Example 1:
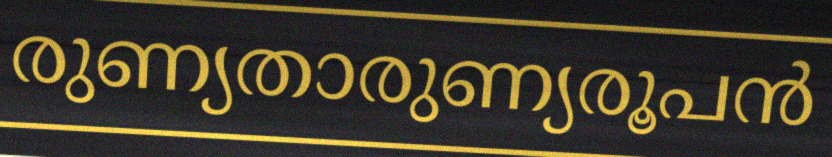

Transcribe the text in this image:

രുണ്യതാരുണ്യരൂപൻ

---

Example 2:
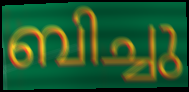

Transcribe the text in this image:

ബിച്ചു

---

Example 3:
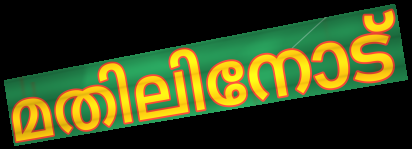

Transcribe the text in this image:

മതിലിനോട്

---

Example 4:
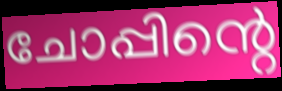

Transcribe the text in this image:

ചോപ്പിന്റെ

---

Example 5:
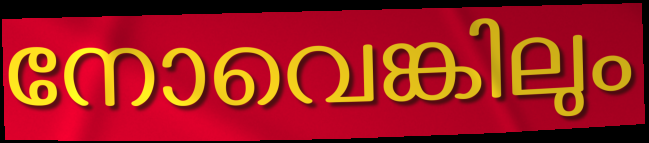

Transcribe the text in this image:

നോവെങ്കിലും